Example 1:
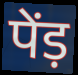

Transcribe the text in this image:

पेंड़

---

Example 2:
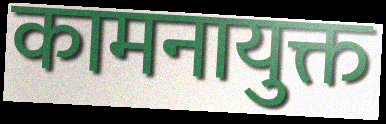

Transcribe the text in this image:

कामनायुक्त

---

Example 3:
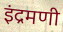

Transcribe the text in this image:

इंद्रमणी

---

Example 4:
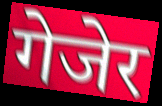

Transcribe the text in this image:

गेजेर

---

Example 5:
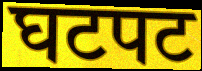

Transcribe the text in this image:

घटपट